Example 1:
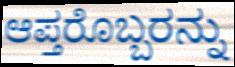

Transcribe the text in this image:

ಆಪ್ತರೊಬ್ಬರನ್ನು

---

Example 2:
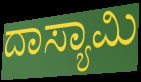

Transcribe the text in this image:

ದಾಸ್ಯಾಮಿ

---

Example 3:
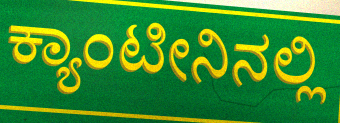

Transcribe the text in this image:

ಕ್ಯಾಂಟೀನಿನಲ್ಲಿ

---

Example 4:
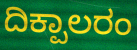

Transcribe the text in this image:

ದಿಕ್ಪಾಲರಂ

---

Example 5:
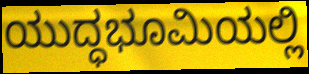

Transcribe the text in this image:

ಯುದ್ಧಭೂಮಿಯಲ್ಲಿ